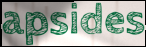
apsides